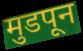
मुडपून